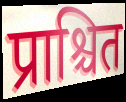
प्राश्चित